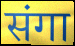
संगा